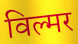
विल्मर